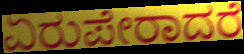
ಏರುಪೇರಾದರೆ